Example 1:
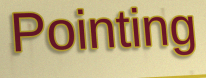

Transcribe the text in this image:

Pointing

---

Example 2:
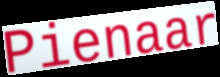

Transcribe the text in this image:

Pienaar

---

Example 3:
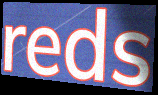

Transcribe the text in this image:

reds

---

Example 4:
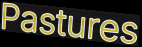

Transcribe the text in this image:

Pastures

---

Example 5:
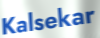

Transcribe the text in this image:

Kalsekar